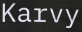
Karvy